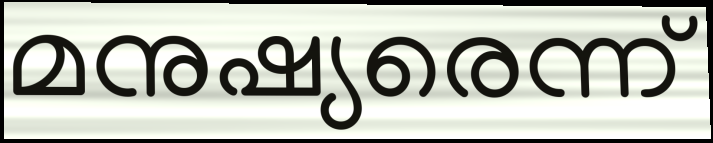
മനുഷ്യരെന്ന്